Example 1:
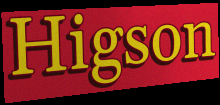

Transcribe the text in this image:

Higson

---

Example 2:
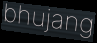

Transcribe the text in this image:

bhujang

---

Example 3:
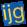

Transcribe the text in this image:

ijg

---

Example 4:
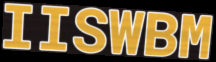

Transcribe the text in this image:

IISWBM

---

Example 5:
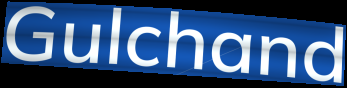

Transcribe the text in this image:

Gulchand